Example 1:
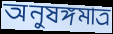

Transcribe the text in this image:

অনুষঙ্গমাত্র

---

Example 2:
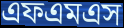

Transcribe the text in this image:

এফএমএস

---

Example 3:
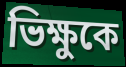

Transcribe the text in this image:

ভিক্ষুকে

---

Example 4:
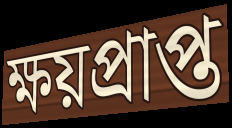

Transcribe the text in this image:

ক্ষয়প্রাপ্ত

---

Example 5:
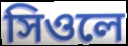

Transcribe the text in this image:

সিওলে